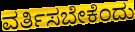
ವರ್ತಿಸಬೇಕೆಂದು